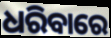
ଧରିବାରେ